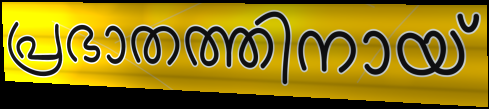
പ്രഭാതത്തിനായ്